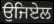
ਉਜਿਏਲ